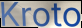
Kroto